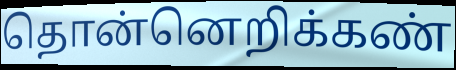
தொன்னெறிக்கண்